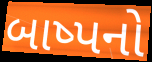
બાષ્પનો